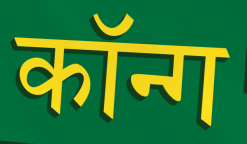
कॉन्ग